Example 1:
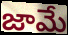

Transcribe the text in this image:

జామే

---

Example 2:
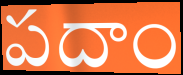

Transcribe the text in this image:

పదాం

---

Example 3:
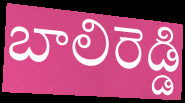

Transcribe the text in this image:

బాలిరెడ్డి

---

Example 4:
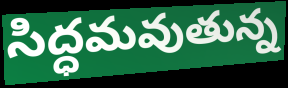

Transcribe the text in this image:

సిద్ధమవుతున్న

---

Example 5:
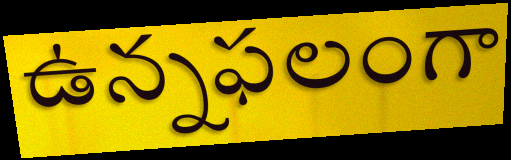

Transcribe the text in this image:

ఉన్నఫలంగా